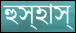
হুস্হাস্